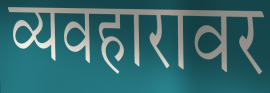
व्यवहारावर